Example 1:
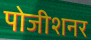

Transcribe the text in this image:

पोजीशनर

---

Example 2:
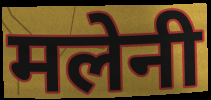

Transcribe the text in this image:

मलेनी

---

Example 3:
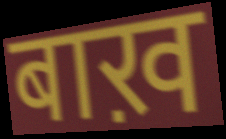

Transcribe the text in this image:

बाख़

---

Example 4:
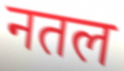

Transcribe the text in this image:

नतल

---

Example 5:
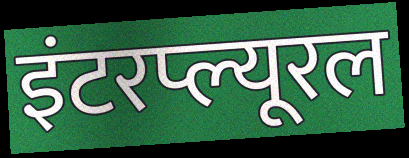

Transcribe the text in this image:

इंटरप्ल्यूरल